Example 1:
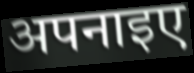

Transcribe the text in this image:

अपनाइए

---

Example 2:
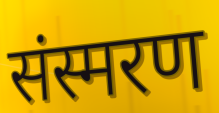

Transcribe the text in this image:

संस्मरण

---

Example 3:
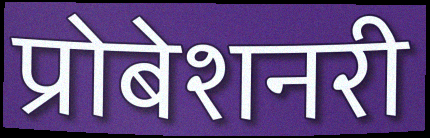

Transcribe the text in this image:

प्रोबेशनरी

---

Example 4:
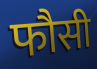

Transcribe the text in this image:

फौसी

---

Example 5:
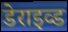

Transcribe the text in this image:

डेराइव्ड